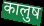
कालुष